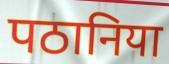
पठानिया